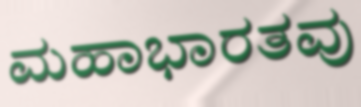
ಮಹಾಭಾರತವು